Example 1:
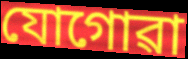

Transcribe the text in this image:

যোগোৱা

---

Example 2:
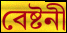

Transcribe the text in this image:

বেষ্টনী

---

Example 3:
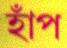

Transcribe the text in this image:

হাঁপ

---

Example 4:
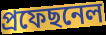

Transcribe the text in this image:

প্ৰফেছনেল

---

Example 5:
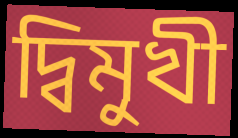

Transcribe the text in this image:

দ্বিমুখী